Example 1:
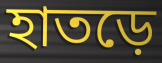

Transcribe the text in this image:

হাতড়ে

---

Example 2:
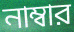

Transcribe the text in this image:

নাম্বার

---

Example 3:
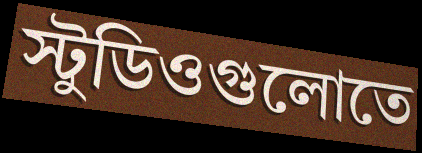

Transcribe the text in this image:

স্টুডিওগুলোতে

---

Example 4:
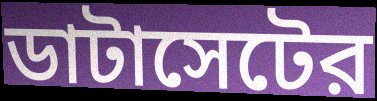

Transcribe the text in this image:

ডাটাসেটের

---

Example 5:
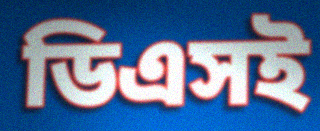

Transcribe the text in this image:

ডিএসই